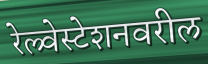
रेल्वेस्टेशनवरील